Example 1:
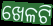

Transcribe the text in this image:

ଖେଳଟି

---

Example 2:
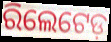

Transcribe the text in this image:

ରିଲେଟେଡ଼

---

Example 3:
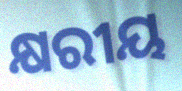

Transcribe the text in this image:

କ୍ଷରୀୟ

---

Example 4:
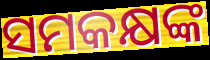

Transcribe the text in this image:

ସମକକ୍ଷଙ୍କ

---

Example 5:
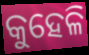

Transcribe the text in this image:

କୁହେଳି